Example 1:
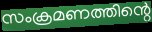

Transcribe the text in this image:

സംക്രമണത്തിന്റെ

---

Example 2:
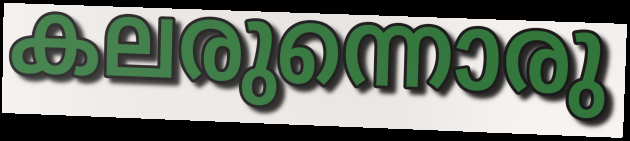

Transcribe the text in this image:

കലരുന്നൊരു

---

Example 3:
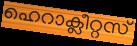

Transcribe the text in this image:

ഹെറാക്ലീറ്റസ്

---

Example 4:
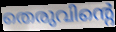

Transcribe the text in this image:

തെരുവിന്റെ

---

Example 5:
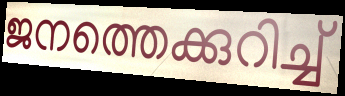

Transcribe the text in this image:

ജനത്തെക്കുറിച്ച്